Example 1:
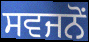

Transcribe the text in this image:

ਸਵਜਨੋਂ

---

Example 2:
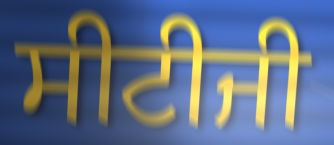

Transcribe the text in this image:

ਸੀਟੀਜੀ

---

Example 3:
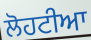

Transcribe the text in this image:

ਲੋਹਟੀਆ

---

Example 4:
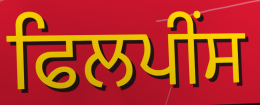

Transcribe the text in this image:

ਫਿਲਪੀਂਸ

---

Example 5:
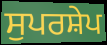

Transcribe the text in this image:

ਸੁਪਰਸ਼ੇਪ